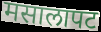
मसालापट